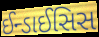
ઈન્ડાઈસિસ